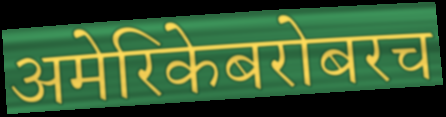
अमेरिकेबरोबरच